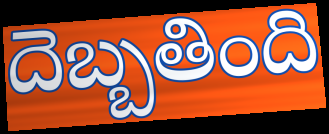
దెబ్బతింది